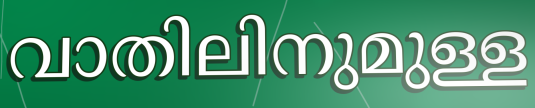
വാതിലിനുമുള്ള